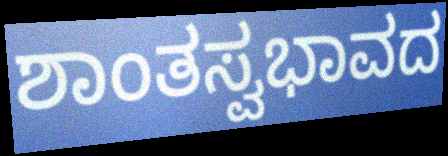
ಶಾಂತಸ್ವಭಾವದ